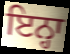
ਇਨ੍ਹਾ